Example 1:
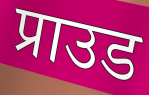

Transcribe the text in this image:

प्राउड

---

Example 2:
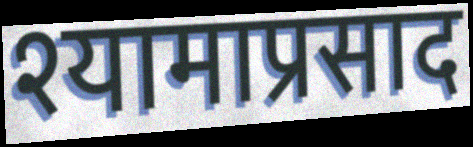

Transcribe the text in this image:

श्यामाप्रसाद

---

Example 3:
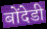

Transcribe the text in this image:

बोंदेडी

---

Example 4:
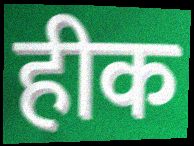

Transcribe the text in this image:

हीक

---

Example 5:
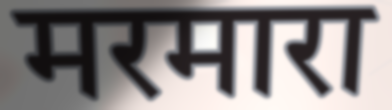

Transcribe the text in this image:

मरमारा